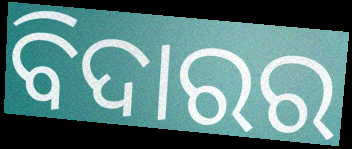
ବିଦାରର